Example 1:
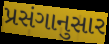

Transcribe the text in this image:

પ્રસંગાનુસાર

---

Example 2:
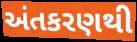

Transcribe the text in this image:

અંતકરણથી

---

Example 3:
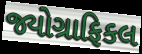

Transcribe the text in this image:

જ્યોગ્રાફિકલ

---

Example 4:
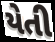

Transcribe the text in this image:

યેતી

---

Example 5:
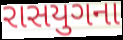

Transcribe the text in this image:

રાસયુગના